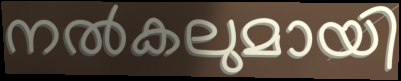
നൽകലുമായി